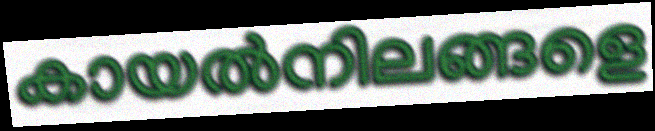
കായൽനിലങ്ങളെ